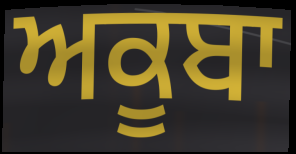
ਅਕੂਬਾ